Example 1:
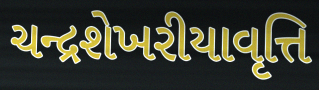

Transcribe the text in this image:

ચન્દ્રશેખરીયાવૃત્તિ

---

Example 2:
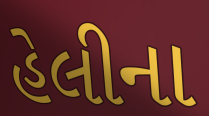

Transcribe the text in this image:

હેલીના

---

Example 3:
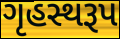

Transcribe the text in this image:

ગૃહસ્થરૂપ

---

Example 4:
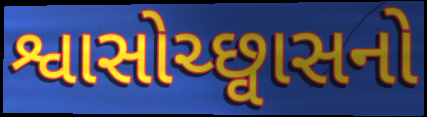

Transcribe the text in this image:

શ્વાસોચ્છ્વાસનો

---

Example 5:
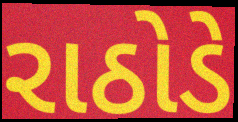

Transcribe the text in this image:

રાઠોડે